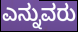
ಎನ್ನುವರು